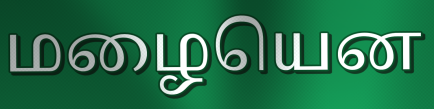
மழையென